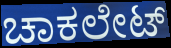
ಚಾಕಲೇಟ್